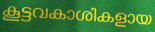
കൂട്ടവകാശികളായ